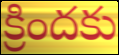
క్రిందకు